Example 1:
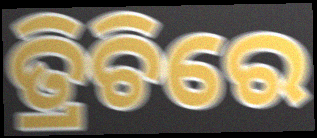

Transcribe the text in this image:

ତ୍ରିଚିରେ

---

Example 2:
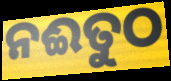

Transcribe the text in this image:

ନଈତୁଠ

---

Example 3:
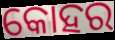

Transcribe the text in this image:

କୋହର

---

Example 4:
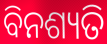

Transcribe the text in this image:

ବିନଶ୍ୟତି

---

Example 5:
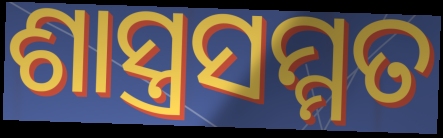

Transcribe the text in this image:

ଶାସ୍ତ୍ରସମ୍ମତ